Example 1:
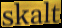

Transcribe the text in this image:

skalt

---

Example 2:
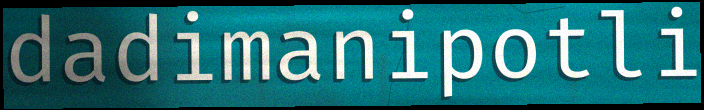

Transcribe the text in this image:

dadimanipotli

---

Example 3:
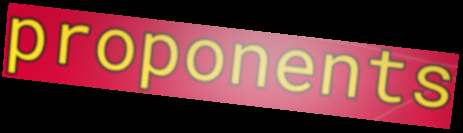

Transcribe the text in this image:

proponents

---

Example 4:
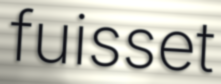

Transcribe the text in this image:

fuisset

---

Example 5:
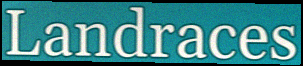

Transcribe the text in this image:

Landraces